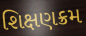
શિક્ષણક્રમ